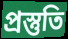
প্ৰস্তুতি